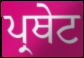
ਪ੍ਰਥੇਟ